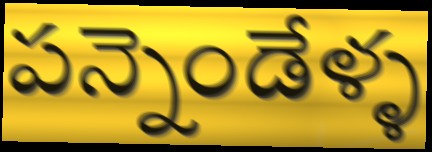
పన్నెండేళ్ళ